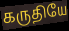
கருதியே